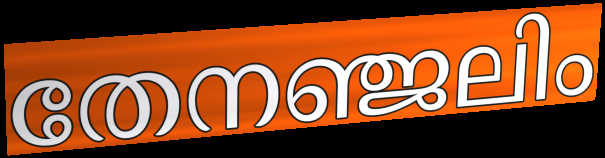
തേനഞ്ജലിം